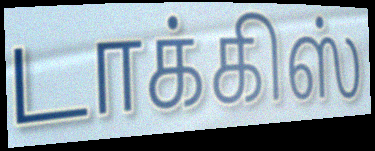
டாக்கிஸ்